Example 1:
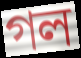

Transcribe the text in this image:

গল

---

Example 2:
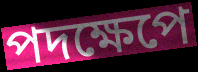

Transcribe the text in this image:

পদক্ষেপে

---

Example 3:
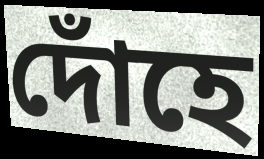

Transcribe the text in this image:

দোঁহে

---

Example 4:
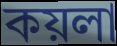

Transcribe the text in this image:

কয়লা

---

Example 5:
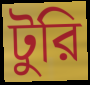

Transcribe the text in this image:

টুরি